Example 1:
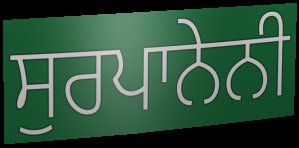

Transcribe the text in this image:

ਸੁਰਪਾਨੇਨੀ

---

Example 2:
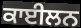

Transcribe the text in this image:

ਕਾਈਲਨ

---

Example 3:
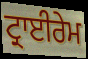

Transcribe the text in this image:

ਟ੍ਰਾਈਰੇਮ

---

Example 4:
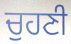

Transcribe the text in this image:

ਚੁਹਣੀ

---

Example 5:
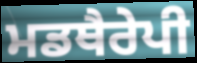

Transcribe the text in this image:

ਮਡਥੈਰੇਪੀ